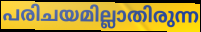
പരിചയമില്ലാതിരുന്ന